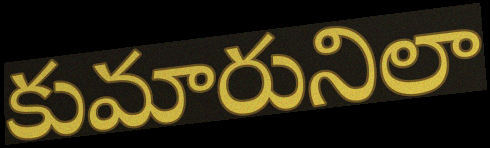
కుమారునిలా